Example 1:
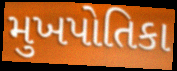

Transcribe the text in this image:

મુખપોતિકા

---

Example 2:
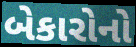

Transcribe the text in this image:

બેકારોનો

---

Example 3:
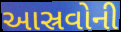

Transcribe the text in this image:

આસ્રવોની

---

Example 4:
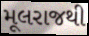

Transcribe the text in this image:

મૂલરાજથી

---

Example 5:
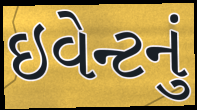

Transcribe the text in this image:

ઇવેન્ટનું